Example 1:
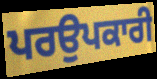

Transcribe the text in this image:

ਪਰਉਪਕਾਰੀ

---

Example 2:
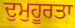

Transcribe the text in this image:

ਦੁਮੁਹੂਰਤਾ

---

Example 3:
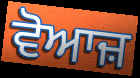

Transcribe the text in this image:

ਵੋਆਜ਼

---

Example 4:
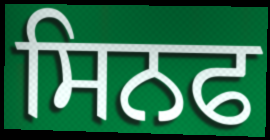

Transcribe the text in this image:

ਸਿਨਫ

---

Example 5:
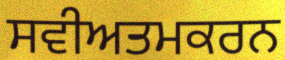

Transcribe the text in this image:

ਸਵੀਅਤਮਕਰਨ